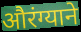
औरंग्याने